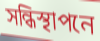
সন্ধিস্থাপনে